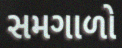
સમગાળો